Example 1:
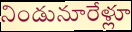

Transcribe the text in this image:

నిండునూరేళ్లూ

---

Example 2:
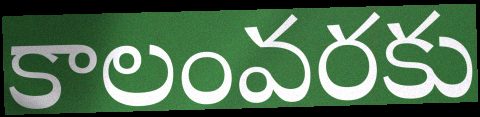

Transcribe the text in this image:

కాలంవరకు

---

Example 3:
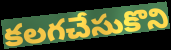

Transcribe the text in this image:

కలగచేసుకొని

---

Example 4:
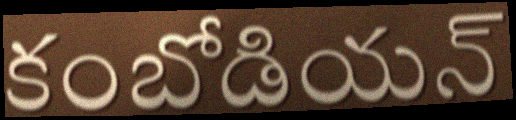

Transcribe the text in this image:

కంబోడియన్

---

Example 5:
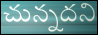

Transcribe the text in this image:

చున్నదని